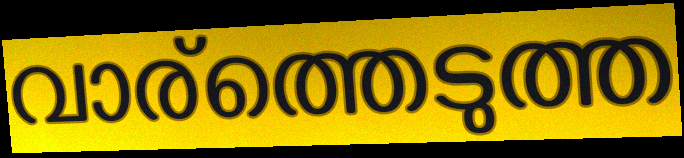
വാര്ത്തെടുത്ത